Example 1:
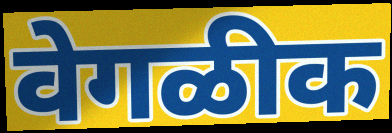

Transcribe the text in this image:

वेगळीक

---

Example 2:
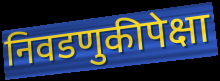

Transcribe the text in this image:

निवडणुकीपेक्षा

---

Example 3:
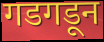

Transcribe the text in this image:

गडगडून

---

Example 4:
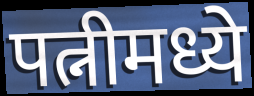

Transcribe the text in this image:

पत्नीमध्ये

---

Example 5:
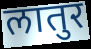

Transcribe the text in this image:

लातुर